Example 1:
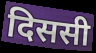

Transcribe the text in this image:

दिससी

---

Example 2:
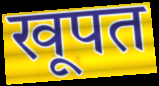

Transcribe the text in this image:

खूपत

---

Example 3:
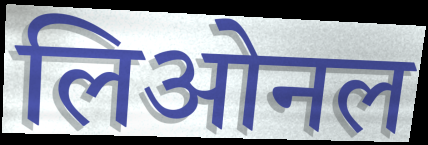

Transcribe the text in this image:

लिओनल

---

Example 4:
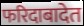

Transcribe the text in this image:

फरिदाबादेत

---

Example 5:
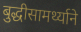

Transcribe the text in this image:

बुद्धीसामर्थ्याने